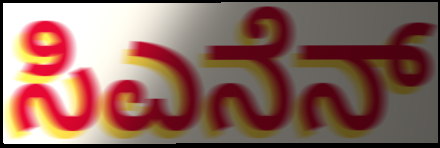
ಸಿಎನೆನ್